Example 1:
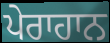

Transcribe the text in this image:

ਪੇਰਾਹਾਨ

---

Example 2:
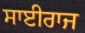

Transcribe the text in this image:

ਸਾਈਰਾਜ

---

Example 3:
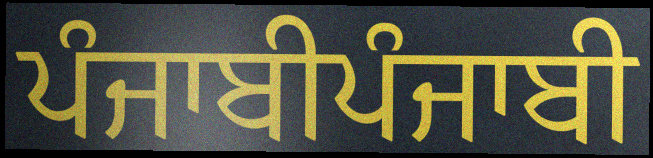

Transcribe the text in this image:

ਪੰਜਾਬੀਪੰਜਾਬੀ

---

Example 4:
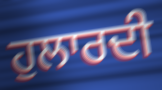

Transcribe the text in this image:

ਹੁਲਾਰਦੀ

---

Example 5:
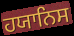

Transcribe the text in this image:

ਹਯਾਨਿਸ